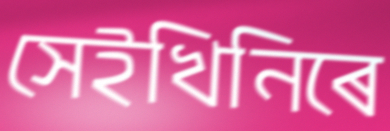
সেইখিনিৰে